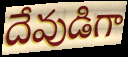
దేవుడిగా